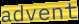
advent